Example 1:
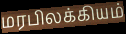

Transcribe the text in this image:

மரபிலக்கியம்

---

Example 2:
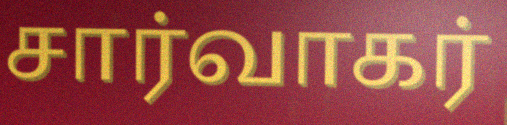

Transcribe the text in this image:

சார்வாகர்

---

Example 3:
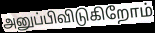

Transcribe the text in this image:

அனுப்பிவிடுகிறோம்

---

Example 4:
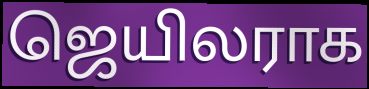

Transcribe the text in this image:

ஜெயிலராக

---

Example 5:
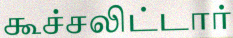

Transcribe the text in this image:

கூச்சலிட்டார்